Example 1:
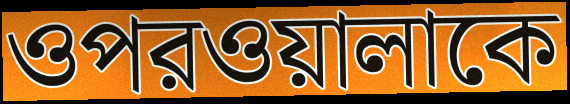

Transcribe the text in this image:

ওপরওয়ালাকে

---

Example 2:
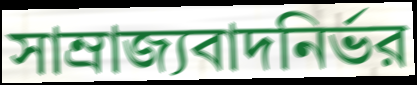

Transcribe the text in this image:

সাম্রাজ্যবাদনির্ভর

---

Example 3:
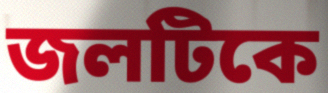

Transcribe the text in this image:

জলটিকে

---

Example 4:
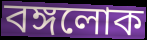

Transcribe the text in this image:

বঙ্গলোক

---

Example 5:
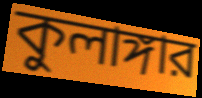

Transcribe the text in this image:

কুলাঙ্গার